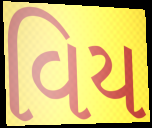
વિય